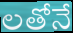
లతోనే